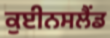
ਕੁਈਨਸਲੈਂਡ